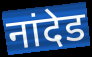
नांदेड